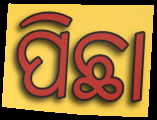
ପିଛା